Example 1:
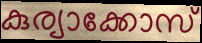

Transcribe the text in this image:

കുര്യാക്കോസ്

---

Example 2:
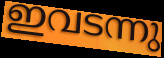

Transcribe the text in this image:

ഇവടന്നു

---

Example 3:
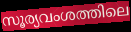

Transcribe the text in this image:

സൂര്യവംശത്തിലെ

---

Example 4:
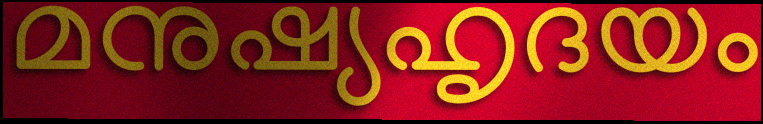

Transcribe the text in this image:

മനുഷ്യഹൃദയം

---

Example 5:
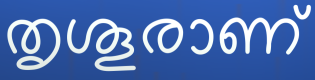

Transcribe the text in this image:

തൃശൂരാണ്